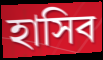
হাসিব